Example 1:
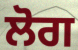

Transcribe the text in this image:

ਲੋਗ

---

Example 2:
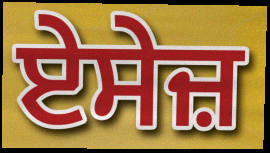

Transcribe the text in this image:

ਏਸੇਜ਼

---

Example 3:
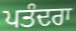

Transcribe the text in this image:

ਪਤੰਦਰਾ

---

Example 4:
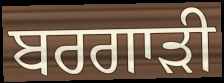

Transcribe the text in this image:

ਬਰਗਾੜੀ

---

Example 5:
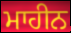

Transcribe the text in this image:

ਮਾਹੀਨ